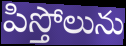
పిస్తోలును